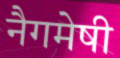
नैगमेषी